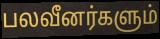
பலவீனர்களும்